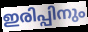
ഇരിപ്പിനും